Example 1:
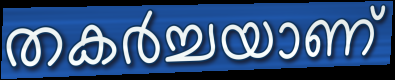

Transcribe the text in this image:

തകർച്ചയാണ്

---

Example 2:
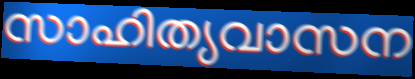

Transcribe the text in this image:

സാഹിത്യവാസന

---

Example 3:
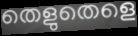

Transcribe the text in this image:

തെളുതെളെ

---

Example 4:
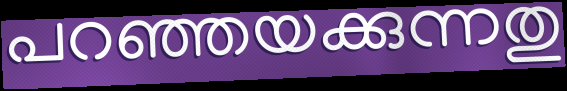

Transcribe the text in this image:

പറഞ്ഞയക്കുന്നതു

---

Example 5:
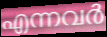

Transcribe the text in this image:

എന്നവർ